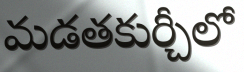
మడతకుర్చీలో